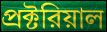
প্রক্টরিয়াল